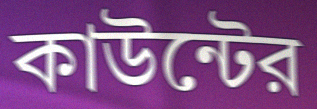
কাউন্টের